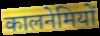
कालनेमियों